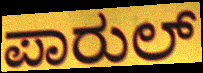
ಪಾರುಲ್